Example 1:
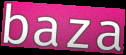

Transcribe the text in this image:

baza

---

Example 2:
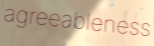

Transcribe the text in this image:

agreeableness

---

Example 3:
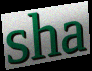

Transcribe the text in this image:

sha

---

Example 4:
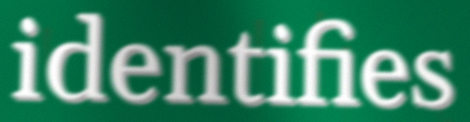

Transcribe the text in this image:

identifies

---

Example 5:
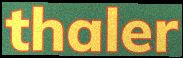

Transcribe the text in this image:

thaler